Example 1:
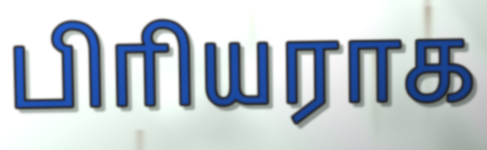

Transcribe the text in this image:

பிரியராக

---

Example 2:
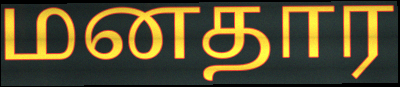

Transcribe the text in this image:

மனதார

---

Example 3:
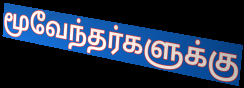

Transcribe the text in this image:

மூவேந்தர்களுக்கு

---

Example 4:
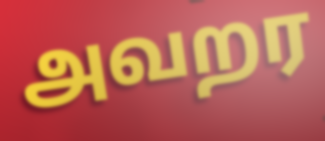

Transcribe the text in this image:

அவறர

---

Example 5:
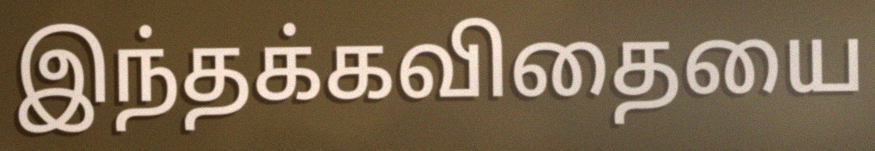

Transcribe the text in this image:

இந்தக்கவிதையை